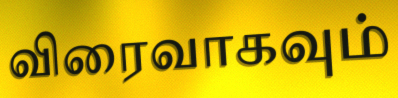
விரைவாகவும்